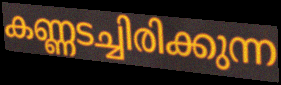
കണ്ണടച്ചിരിക്കുന്ന